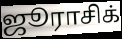
ஜூராசிக்